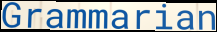
Grammarian